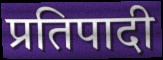
प्रतिपादी